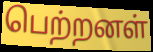
பெற்றனள்